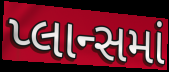
પ્લાન્સમાં